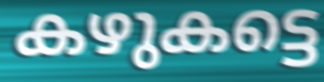
കഴുകട്ടെ